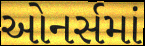
ઓનર્સમાં